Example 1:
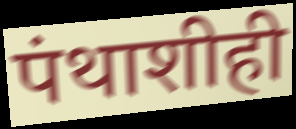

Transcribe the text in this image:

पंथाशीही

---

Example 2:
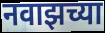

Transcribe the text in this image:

नवाझच्या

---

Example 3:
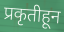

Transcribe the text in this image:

प्रकृतीहून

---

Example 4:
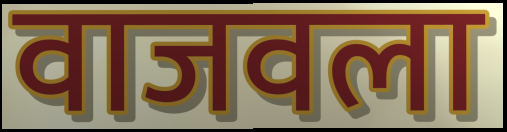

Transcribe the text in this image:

वाजवला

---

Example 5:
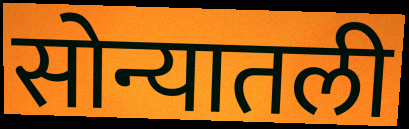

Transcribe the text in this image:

सोन्यातली